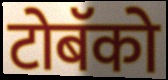
टोबॅको